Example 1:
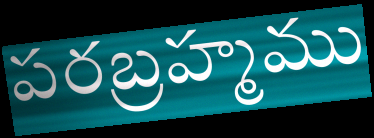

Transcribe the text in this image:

పరబ్రహ్మము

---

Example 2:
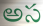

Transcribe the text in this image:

అస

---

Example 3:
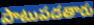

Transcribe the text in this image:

పాటుపడతారు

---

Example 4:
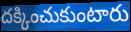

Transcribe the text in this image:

దక్కించుకుంటారు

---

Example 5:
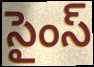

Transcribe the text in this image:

సైంస్